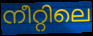
നീറ്റിലെ